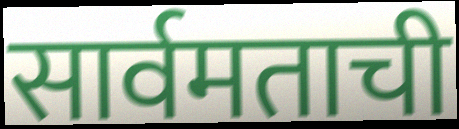
सार्वमताची